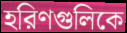
হরিণগুলিকে